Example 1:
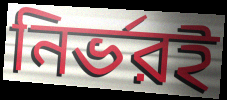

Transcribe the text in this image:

নির্ভরই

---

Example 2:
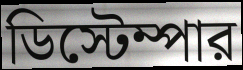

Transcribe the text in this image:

ডিস্টেম্পার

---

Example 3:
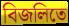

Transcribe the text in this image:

বিজলিতে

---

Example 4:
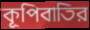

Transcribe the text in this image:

কূপিবাতির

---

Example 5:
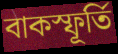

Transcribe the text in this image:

বাকস্ফূর্তি